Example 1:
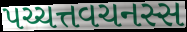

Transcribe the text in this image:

પચ્ચત્તવચનસ્સ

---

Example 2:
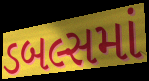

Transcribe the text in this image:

ડબલ્સમાં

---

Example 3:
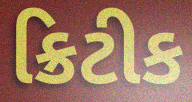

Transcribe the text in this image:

ક્રિટીક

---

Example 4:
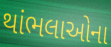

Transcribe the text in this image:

થાંભલાઓના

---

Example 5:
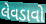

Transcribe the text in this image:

લેવડાવો